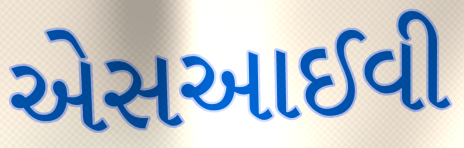
એસઆઈવી